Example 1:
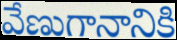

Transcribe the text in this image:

వేణుగానానికి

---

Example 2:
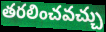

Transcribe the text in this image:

తరలించవచ్చు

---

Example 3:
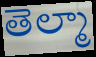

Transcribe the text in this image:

తెల్మా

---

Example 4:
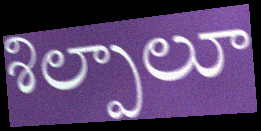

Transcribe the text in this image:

శిల్పాలూ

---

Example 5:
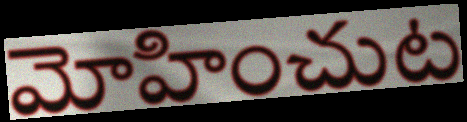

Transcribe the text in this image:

మోహించుట